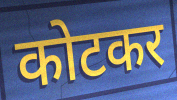
कोटकर